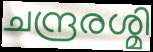
ചന്ദ്രരശ്മി